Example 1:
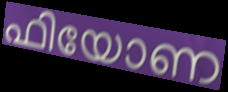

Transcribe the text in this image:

ഫിയോണ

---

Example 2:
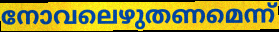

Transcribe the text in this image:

നോവലെഴുതണമെന്ന്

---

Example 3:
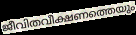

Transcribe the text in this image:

ജീവിതവീക്ഷണത്തെയും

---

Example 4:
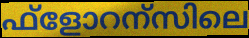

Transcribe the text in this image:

ഫ്ളോറന്സിലെ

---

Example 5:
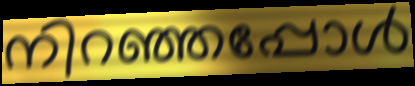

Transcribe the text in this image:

നിറഞ്ഞപ്പോൾ